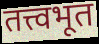
तत्त्वभूत